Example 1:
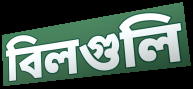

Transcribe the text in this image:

বিলগুলি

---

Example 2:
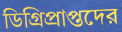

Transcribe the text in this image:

ডিগ্রিপ্রাপ্তদের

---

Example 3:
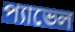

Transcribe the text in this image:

প্যাভেল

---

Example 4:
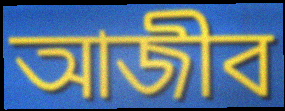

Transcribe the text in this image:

আজীব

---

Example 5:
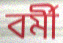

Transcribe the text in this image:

বর্মী